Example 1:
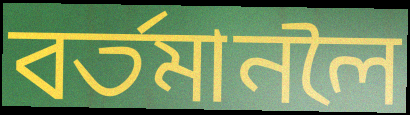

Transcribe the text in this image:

বৰ্তমানলৈ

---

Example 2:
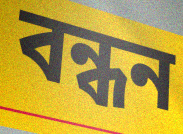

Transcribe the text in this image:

বন্ধন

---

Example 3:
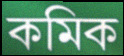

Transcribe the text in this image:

কমিক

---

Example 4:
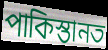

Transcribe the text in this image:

পাকিস্তানত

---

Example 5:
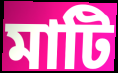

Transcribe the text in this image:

মাটি